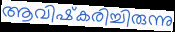
ആവിഷ്‌കരിച്ചിരുന്നു